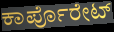
ಕಾರ್ಪೊರೇಟ್